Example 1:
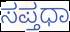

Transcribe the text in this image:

ಸಪ್ತಧಾ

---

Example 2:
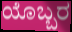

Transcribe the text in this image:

ಯೊಬ್ಬರ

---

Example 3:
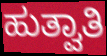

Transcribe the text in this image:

ಹುತ್ವಾತಿ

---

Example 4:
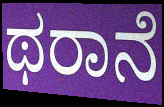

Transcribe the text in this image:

ಥರಾನೆ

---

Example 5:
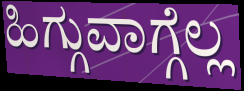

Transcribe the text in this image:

ಹಿಗ್ಗುವಾಗ್ಗೆಲ್ಲ